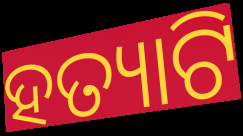
ହତ୍ୟାଟି